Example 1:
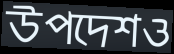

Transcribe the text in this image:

উপদেশও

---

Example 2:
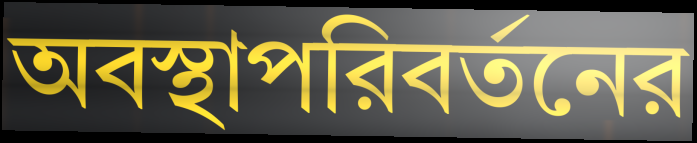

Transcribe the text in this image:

অবস্থাপরিবর্তনের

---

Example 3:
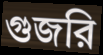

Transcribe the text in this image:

গুজরি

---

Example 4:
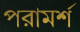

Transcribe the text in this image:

পরামর্শ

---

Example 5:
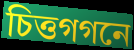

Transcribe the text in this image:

চিত্তগগনে